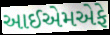
આઈએમએફે